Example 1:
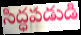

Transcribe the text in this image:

సిద్ధపడుడి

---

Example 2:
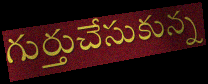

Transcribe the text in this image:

గుర్తుచేసుకున్న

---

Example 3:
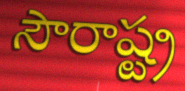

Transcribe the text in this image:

సౌరాష్ట్ర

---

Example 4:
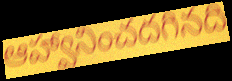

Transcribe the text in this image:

ఆహ్వానించదగినది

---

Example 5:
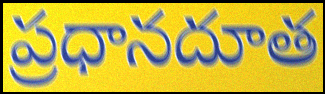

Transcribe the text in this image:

ప్రధానదూత